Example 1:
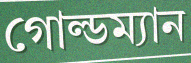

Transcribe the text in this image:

গোল্ডম্যান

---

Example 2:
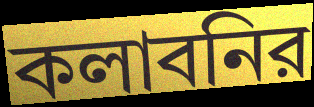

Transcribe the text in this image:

কলাবনির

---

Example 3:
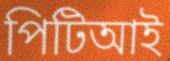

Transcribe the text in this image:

পিটিআই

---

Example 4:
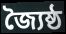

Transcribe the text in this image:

জ্যৈষ্ঠ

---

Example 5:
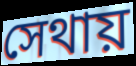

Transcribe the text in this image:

সেথায়